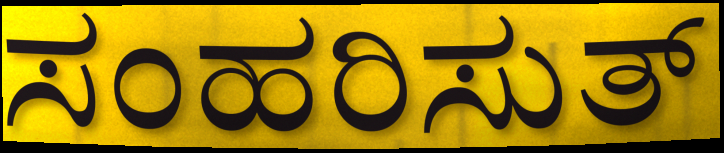
ಸಂಹರಿಸುತ್